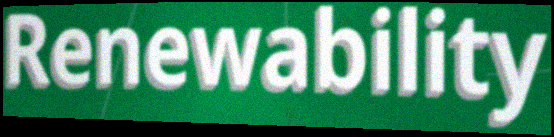
Renewability